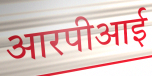
आरपीआई